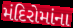
મંદિરોમાંના